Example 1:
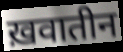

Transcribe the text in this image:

ख़वातीन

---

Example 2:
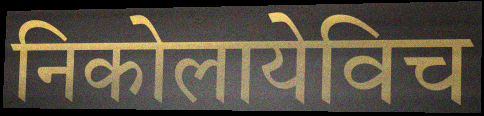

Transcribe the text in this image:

निकोलायेविच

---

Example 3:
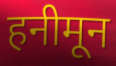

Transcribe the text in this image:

हनीमून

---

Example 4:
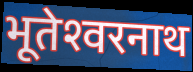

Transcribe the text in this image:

भूतेश्वरनाथ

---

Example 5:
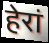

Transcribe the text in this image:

हेरां